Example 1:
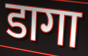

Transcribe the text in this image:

डागा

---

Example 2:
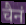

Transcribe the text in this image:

चैनं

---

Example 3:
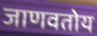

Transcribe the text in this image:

जाणवतोय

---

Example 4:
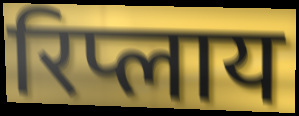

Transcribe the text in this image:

रिप्लाय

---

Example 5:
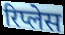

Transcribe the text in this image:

रिप्लेस